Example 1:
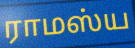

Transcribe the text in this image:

ராமஸ்ய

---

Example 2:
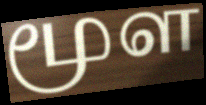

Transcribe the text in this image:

மூள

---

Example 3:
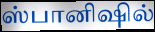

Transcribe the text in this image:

ஸ்பானிஷில்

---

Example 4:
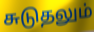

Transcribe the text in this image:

சுடுதலும்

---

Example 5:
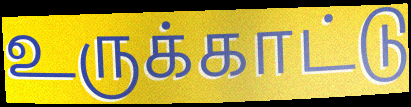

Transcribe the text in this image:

உருக்காட்டு